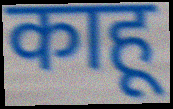
काहू